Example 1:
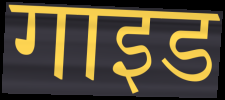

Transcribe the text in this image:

गाइड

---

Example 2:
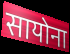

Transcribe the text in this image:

सायोना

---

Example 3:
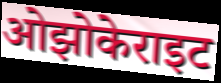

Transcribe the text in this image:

ओझोकेराइट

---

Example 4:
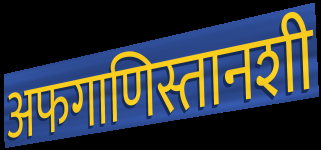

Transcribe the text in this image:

अफगाणिस्तानशी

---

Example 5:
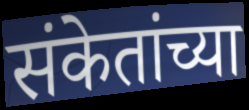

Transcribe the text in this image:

संकेतांच्या